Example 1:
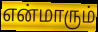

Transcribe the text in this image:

என்மாரும்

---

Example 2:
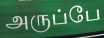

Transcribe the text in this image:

அருப்பே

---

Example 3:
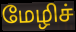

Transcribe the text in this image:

மேழிச்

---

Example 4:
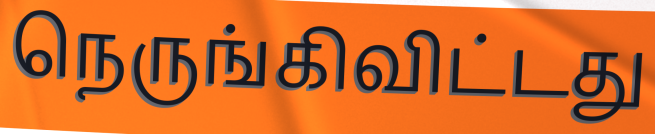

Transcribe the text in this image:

நெருங்கிவிட்டது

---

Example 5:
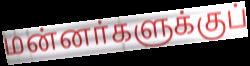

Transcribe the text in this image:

மன்னர்களுக்குப்